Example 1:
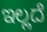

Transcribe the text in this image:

ಇಲ್ಲದೆ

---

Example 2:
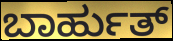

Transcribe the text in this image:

ಬಾರ್ಹುತ್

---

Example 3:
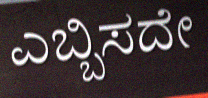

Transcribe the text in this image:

ಎಬ್ಬಿಸದೇ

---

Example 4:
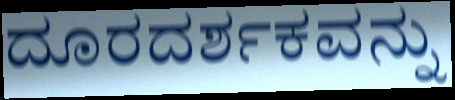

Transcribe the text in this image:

ದೂರದರ್ಶಕವನ್ನು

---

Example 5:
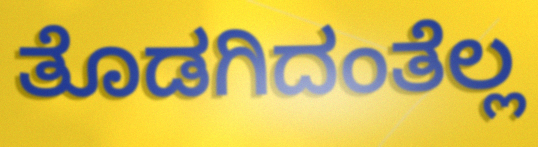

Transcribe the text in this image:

ತೊಡಗಿದಂತೆಲ್ಲ